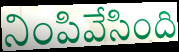
నింపివేసింది